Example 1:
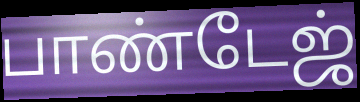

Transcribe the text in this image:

பாண்டேஜ்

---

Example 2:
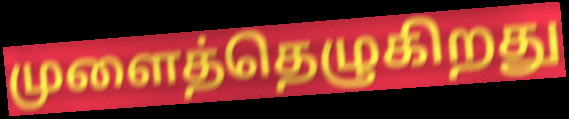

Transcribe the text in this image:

முளைத்தெழுகிறது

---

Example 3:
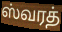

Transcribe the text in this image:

ஸ்வரத்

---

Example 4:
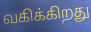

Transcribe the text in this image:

வகிக்கிறது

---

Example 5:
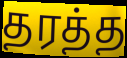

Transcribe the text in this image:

தரத்த